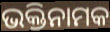
ଭକ୍ତିନାମକ